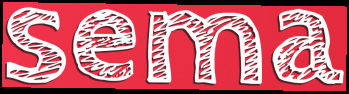
sema